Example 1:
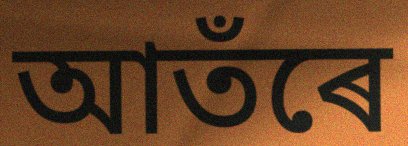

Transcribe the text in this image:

আতঁৰে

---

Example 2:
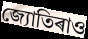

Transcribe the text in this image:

জ্যোতিৰাও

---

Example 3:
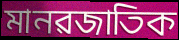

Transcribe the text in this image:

মানৱজাতিক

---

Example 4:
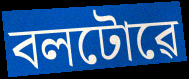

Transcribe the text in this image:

বলটোৱে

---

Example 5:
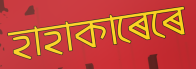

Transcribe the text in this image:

হাহাকাৰেৰে